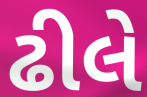
ઢીલે